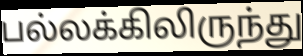
பல்லக்கிலிருந்து